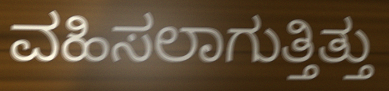
ವಹಿಸಲಾಗುತ್ತಿತ್ತು